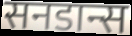
सनडान्स